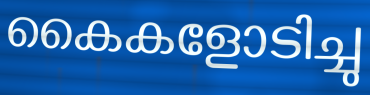
കൈകളോടിച്ചു